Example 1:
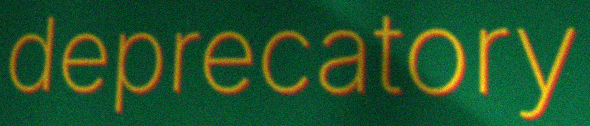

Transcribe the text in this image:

deprecatory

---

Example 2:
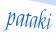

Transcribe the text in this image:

pataki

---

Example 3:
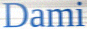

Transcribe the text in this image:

Dami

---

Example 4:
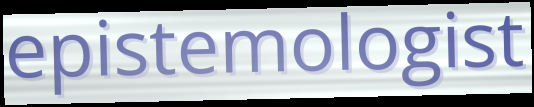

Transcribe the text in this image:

epistemologist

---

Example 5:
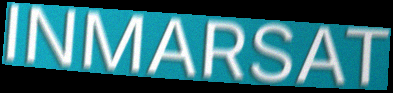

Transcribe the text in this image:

INMARSAT